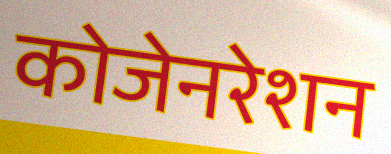
कोजेनरेशन